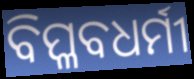
ବିପ୍ଳବଧର୍ମୀ